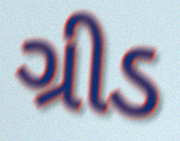
ગ્રીડ